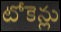
టోకెన్లు